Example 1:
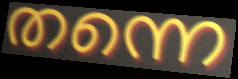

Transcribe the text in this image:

തന്നെ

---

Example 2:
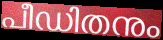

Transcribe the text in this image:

പീഡിതനും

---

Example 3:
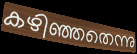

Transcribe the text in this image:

കഴിഞ്ഞതെന്നു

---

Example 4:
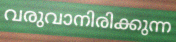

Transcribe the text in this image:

വരുവാനിരിക്കുന്ന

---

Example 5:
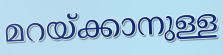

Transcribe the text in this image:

മറയ്ക്കാനുള്ള